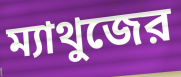
ম্যাথুজের